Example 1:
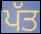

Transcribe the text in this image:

ਪੱਤ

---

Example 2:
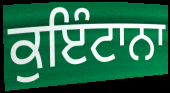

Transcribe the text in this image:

ਕੁਇੰਟਾਨਾ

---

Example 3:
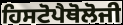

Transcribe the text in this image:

ਹਿਸਟੋਪੈਥੋਲੋਜੀ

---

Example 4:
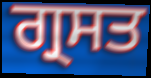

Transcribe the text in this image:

ਗ੍ਰਸਤ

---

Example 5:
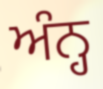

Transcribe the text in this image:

ਅੰਨ੍ਹ